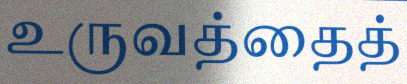
உருவத்தைத்